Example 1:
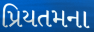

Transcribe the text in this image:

પ્રિયતમના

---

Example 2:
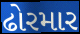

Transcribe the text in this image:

ઢોરમાર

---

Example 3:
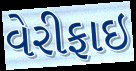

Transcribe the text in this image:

વેરીફાઇ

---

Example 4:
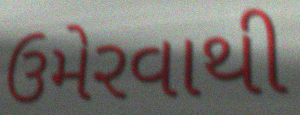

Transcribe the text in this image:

ઉમેરવાથી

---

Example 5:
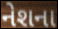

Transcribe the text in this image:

નેશના